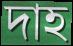
দাহ